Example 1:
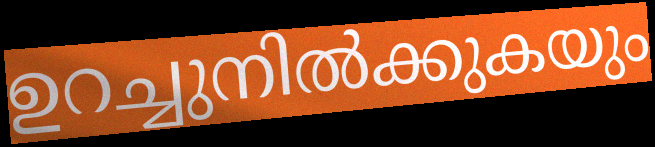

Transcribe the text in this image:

ഉറച്ചുനിൽക്കുകയും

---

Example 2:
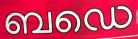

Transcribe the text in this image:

ബഡെ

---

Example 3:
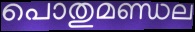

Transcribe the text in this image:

പൊതുമണ്ഡല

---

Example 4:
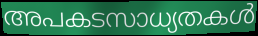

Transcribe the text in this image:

അപകടസാധ്യതകൾ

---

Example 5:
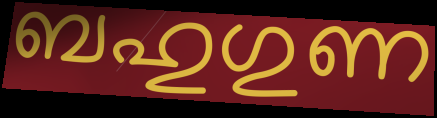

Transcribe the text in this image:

ബഹുഗുണ